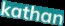
kathan